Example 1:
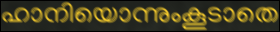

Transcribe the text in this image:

ഹാനിയൊന്നുംകൂടാതെ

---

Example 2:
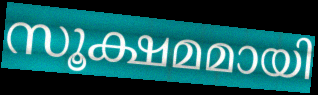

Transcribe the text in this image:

സൂക്ഷമമായി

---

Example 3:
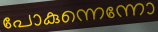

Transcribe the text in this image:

പോകുന്നെന്നോ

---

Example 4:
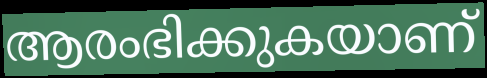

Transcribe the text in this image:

ആരംഭിക്കുകയാണ്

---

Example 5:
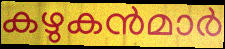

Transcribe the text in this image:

കഴുകൻമാർ